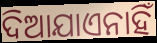
ଦିଆଯାଏନାହିଁ